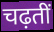
चढ़तीं